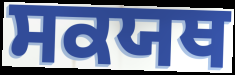
ਸਕਯਥ